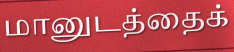
மானுடத்தைக்